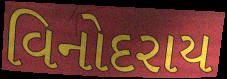
વિનોદરાય